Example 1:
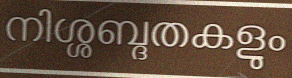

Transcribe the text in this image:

നിശ്ശബ്ദതകളും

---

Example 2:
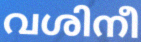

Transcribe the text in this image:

വശിനീ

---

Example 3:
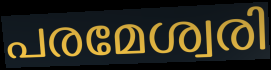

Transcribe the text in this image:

പരമേശ്വരി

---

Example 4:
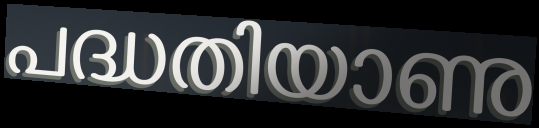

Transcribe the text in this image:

പദ്ധതിയാണു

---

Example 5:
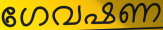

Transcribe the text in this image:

ഗേവഷണ